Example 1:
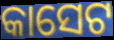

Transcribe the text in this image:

କାସେଟ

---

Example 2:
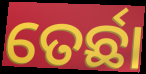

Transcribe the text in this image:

ତେର୍ଛା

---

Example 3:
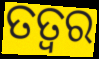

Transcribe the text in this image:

ତତ୍ଵର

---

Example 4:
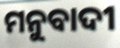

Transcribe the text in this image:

ମନୁବାଦୀ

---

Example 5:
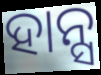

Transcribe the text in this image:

ହାନ୍ସ